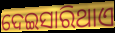
ଦେଇସାରିଥାଏ